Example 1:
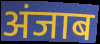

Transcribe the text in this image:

अंजाब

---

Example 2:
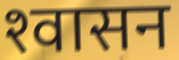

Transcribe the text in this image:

श्वासन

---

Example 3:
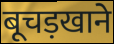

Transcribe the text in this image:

बूचड़खाने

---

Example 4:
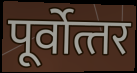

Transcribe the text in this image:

पूर्वोत्‍तर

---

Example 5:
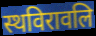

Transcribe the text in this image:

स्थविरावलि